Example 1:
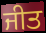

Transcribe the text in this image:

ਜੀਤ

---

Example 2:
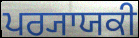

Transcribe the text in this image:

ਪਰ੍ਯਾਯਕੀ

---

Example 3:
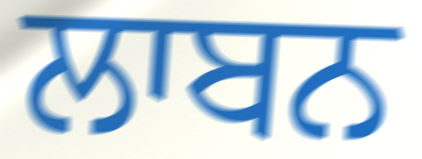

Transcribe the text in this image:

ਲਾਬਨ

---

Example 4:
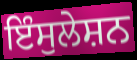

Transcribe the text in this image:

ਇੰਸੁਲੇਸ਼ਨ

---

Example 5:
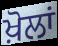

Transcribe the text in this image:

ਖ਼ੋਲਾਂ